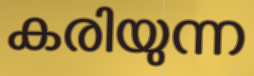
കരിയുന്ന